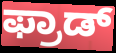
ಫ್ರಾಡ್